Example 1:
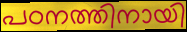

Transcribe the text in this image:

പഠനത്തിനായി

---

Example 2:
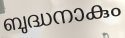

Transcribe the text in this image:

ബുദ്ധനാകും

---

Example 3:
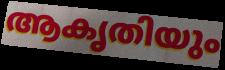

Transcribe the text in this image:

ആകൃതിയും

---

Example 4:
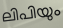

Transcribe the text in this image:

ലിപിയും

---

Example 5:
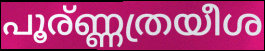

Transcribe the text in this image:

പൂര്ണ്ണത്രയീശ